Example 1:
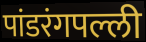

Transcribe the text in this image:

पांडरंगपल्ली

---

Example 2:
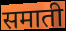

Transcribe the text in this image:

समाती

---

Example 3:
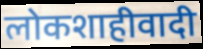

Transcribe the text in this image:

लोकशाहीवादी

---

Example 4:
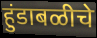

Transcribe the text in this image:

हुंडाबळीचे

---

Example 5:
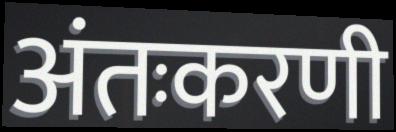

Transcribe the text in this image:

अंतःकरणी